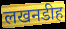
लखनडीह